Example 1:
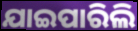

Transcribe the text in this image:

ଯାଇପାରିଲି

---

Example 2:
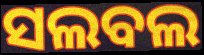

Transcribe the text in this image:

ସଲବଲ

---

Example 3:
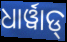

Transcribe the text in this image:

ଧାର୍ୱାଡ୍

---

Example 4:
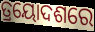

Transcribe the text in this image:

ତ୍ରୟୋଦଶରେ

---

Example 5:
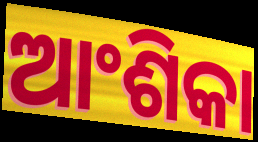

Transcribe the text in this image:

ଆଂଶିକା